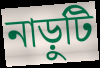
নাড়ুটি